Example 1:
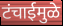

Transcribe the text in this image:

टंचाईमुळे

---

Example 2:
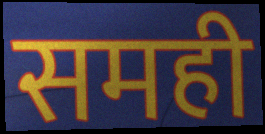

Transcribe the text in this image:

समही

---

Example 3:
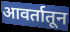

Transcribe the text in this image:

आवर्तातून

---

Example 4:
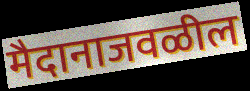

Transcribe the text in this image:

मैदानाजवळील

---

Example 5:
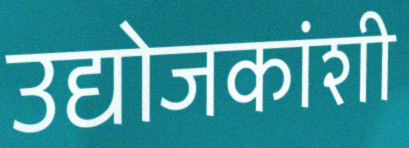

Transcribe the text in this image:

उद्योजकांशी